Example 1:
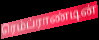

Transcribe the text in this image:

ரெம்ப்ராண்டின்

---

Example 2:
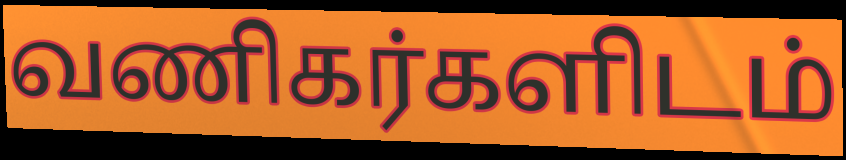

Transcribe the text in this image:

வணிகர்களிடம்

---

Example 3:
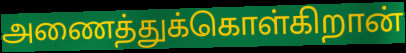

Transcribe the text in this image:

அணைத்துக்கொள்கிறான்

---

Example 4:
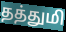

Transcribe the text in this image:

தத்துமி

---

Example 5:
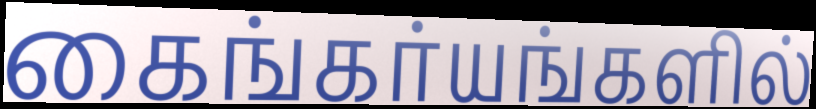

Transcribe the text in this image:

கைங்கர்யங்களில்